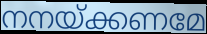
നനയ്ക്കണമേ